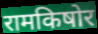
रामकिषोर